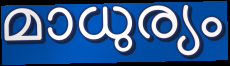
മാധുര്യം